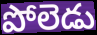
పోలెడు